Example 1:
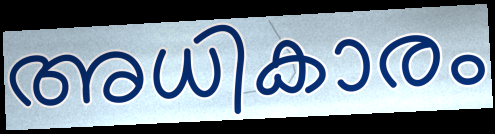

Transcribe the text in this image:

അധികാരം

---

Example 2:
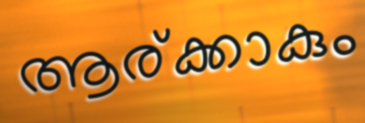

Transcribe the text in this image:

ആര്ക്കാകും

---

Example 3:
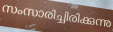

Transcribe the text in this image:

സംസാരിച്ചിരിക്കുന്നു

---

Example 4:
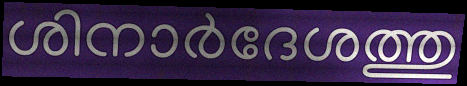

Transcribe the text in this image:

ശിനാർദേശത്തു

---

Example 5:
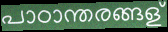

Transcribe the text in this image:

പാഠാന്തരങ്ങള്